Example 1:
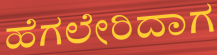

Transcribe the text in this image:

ಹೆಗಲೇರಿದಾಗ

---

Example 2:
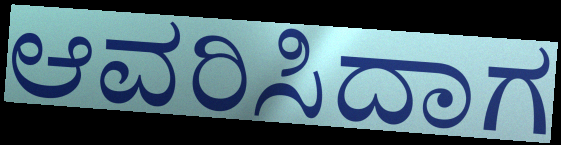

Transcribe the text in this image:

ಆವರಿಸಿದಾಗ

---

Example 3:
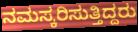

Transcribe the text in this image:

ನಮಸ್ಕರಿಸುತ್ತಿದ್ದರು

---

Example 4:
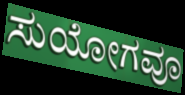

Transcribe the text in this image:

ಸುಯೋಗವೂ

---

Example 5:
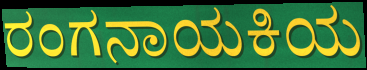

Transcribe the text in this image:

ರಂಗನಾಯಕಿಯ